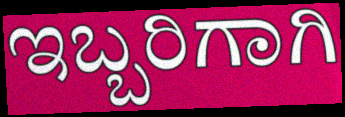
ಇಬ್ಬರಿಗಾಗಿ